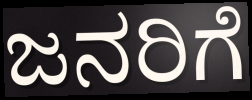
ಜನರಿಗೆ